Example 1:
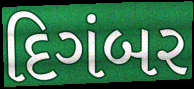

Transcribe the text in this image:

દિગંબર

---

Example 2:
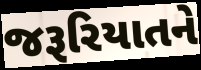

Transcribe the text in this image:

જરૂરિયાતને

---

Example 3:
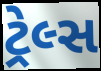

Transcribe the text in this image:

ટ્રેલ્સ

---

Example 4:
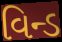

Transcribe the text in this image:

વિન્ડ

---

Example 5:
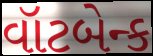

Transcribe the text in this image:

વૉટબેન્ક